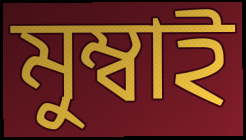
মুম্বাই